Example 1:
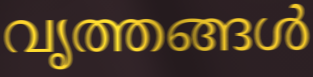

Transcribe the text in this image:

വൃത്തങ്ങൾ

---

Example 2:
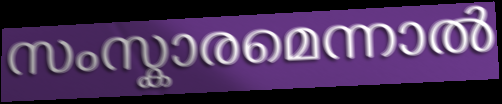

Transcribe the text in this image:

സംസ്കാരമെന്നാൽ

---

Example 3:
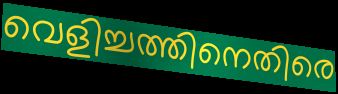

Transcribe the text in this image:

വെളിച്ചത്തിനെതിരെ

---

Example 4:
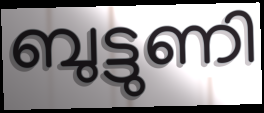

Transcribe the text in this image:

ബുട്ടുണി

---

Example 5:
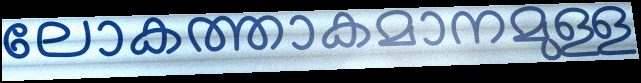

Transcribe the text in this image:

ലോകത്താകമാനമുള്ള